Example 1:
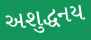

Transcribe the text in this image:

અશુદ્ધનય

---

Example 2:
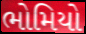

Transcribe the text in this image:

ભોમિયો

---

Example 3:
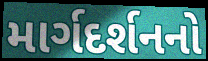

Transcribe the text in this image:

માર્ગદર્શનનો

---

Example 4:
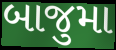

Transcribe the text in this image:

બાજુમા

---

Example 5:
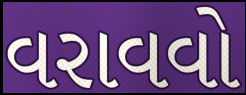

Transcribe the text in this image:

વરાવવો